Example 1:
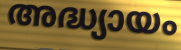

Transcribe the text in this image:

അദ്ധ്യായം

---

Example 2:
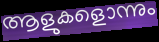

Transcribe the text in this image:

ആളുകളൊന്നും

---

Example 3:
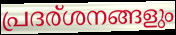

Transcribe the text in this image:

പ്രദര്ശനങ്ങളും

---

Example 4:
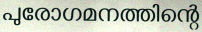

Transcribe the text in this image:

പുരോഗമനത്തിന്റെ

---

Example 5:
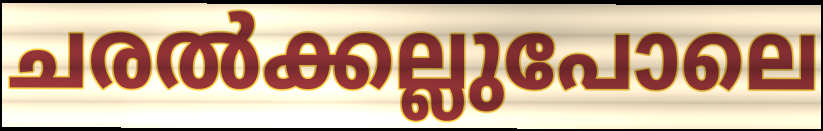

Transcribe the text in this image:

ചരൽക്കല്ലുപോലെ